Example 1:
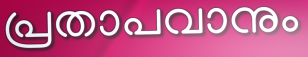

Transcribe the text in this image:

പ്രതാപവാനും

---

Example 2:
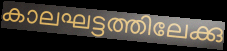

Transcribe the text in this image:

കാലഘട്ടത്തിലേക്കു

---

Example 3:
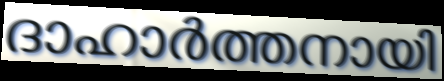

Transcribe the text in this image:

ദാഹാർത്തനായി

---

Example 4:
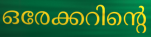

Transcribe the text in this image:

ഒരേക്കറിന്റെ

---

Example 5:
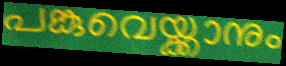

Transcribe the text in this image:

പങ്കുവെയ്ക്കാനും